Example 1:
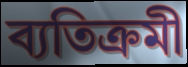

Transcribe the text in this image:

ব্যতিক্রমী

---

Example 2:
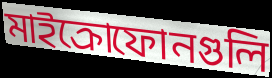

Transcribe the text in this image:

মাইক্রোফোনগুলি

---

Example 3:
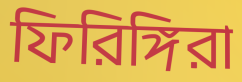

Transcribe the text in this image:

ফিরিঙ্গিরা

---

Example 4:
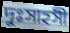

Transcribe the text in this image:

দুঃসাহসী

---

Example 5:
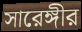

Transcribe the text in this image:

সারেঙ্গীর